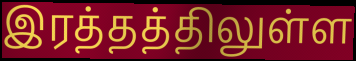
இரத்தத்திலுள்ள